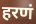
हरणं